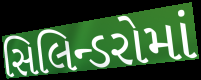
સિલિન્ડરોમાં